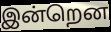
இன்றென